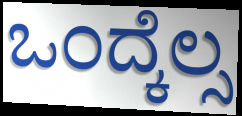
ಒಂದ್ಕೆಲ್ಸ